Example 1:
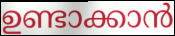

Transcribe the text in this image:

ഉണ്ടാക്കാൻ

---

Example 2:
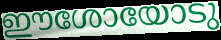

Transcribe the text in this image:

ഈശോയോടു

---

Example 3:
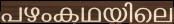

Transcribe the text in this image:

പഴംകഥയിലെ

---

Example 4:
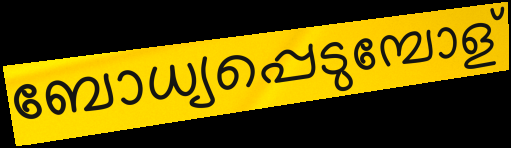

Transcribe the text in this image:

ബോധ്യപ്പെടുമ്പോള്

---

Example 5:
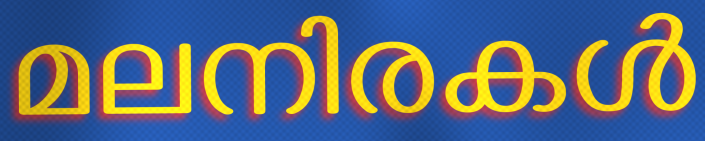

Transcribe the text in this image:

മലനിരകൾ